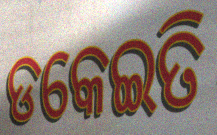
ଡକେଇତି